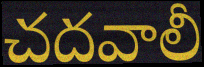
చదవాలీ